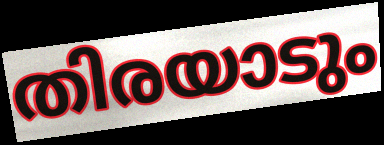
തിരയാടും